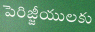
పెరిజ్జీయులకు